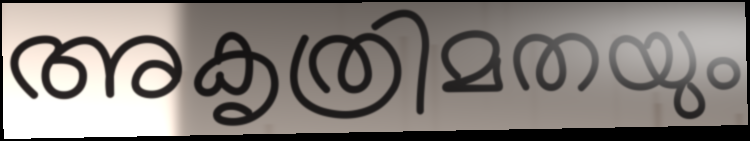
അകൃത്രിമതയും